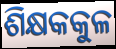
ଶିକ୍ଷକକୁଳ